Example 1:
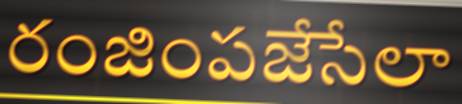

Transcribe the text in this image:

రంజింపజేసేలా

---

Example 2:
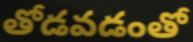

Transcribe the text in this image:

తోడవడంతో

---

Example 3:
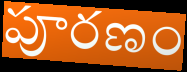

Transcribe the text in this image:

పూరణం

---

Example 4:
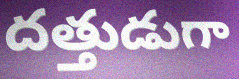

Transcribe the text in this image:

దత్తుడుగా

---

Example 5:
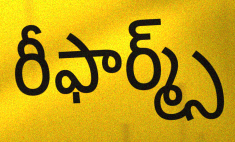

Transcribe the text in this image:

రీఫార్మ్స్